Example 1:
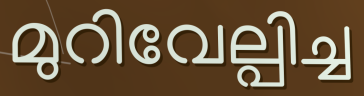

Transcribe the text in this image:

മുറിവേല്പിച്ച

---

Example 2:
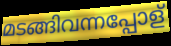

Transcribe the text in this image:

മടങ്ങിവന്നപ്പോള്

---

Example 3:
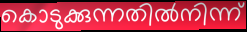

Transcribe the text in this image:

കൊടുക്കുന്നതിൽനിന്ന്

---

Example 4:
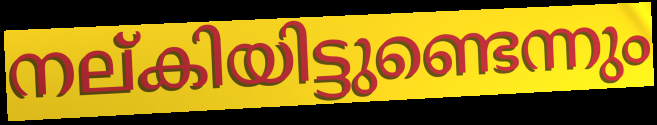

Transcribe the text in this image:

നല്കിയിട്ടുണ്ടെന്നും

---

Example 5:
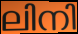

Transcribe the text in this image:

ലിനി